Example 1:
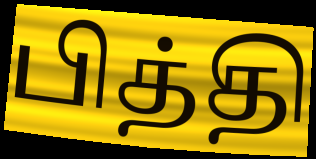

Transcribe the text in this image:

பித்தி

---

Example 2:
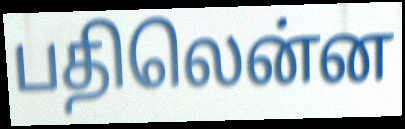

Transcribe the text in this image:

பதிலென்ன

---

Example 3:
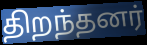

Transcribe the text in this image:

திறந்தனர்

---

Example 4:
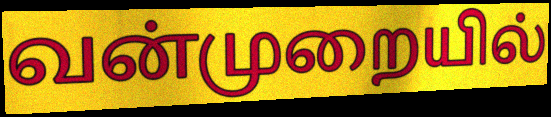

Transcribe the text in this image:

வன்முறையில்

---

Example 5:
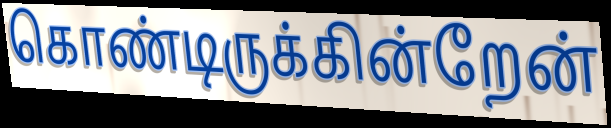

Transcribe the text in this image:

கொண்டிருக்கின்றேன்